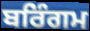
ਬਰਿੰਗਮ